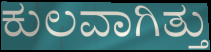
ಕುಲವಾಗಿತ್ತು